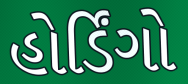
હોર્ડિંગો